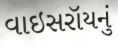
વાઇસરૉયનું